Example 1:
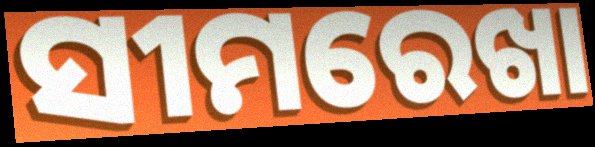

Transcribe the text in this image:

ସୀମରେଖା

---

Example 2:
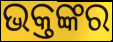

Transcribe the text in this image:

ଭକ୍ତଙ୍କର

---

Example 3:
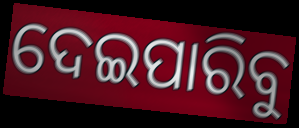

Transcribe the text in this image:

ଦେଇପାରିବୁ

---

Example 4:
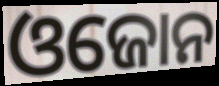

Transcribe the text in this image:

ଓଜୋନ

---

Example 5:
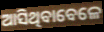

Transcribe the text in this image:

ଆସିଥିବାବେଳେ